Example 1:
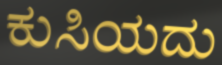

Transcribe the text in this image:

ಕುಸಿಯದು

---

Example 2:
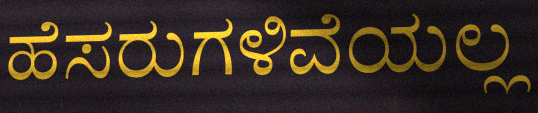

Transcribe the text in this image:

ಹೆಸರುಗಳಿವೆಯಲ್ಲ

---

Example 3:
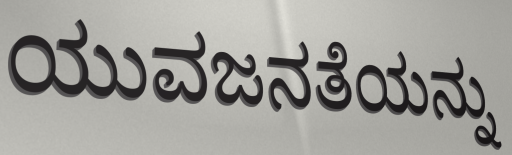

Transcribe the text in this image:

ಯುವಜನತೆಯನ್ನು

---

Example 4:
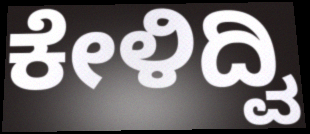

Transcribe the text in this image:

ಕೇಳಿದ್ವಿ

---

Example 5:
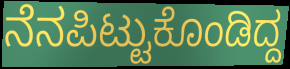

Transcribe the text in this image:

ನೆನಪಿಟ್ಟುಕೊಂಡಿದ್ದ